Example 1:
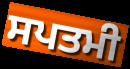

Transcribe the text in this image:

ਸਪਤਮੀ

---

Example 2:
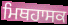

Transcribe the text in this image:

ਮਿਥਹਾਸਕ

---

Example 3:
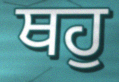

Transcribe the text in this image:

ਥਹੁ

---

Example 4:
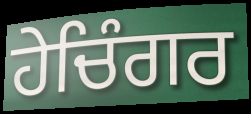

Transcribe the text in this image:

ਹੇਚਿੰਗਰ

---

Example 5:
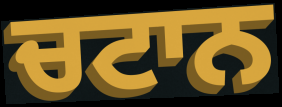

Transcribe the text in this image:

ਚਟਾਨ